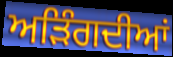
ਅੜਿੰਗਦੀਆਂ